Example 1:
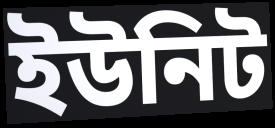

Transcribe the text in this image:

ইউনিট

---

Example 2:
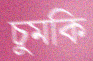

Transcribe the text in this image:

চুমকি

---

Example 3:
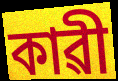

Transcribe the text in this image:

কাৱী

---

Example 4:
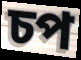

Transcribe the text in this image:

চপ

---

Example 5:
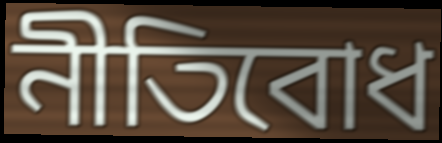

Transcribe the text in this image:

নীতিবোধ